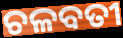
ଚଳବତୀ